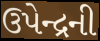
ઉપેન્દ્રની